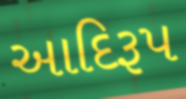
આદિરૂપ